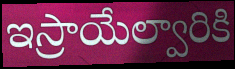
ఇస్రాయేల్వారికి